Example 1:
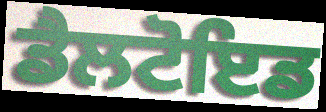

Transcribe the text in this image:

ਡੈਲਟੋਇਡ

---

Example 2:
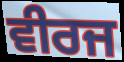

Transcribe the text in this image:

ਵੀਰਜ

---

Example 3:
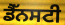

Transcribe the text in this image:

ਡੈੱਨਸਟੀ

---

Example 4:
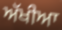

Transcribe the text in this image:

ਅੱਖੀਆ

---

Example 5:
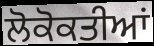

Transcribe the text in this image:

ਲੋਕੋਕਤੀਆਂ